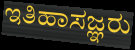
ಇತಿಹಾಸಜ್ಞರು